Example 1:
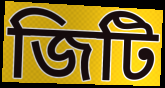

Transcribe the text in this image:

জিটি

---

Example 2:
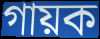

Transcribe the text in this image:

গায়ক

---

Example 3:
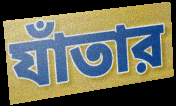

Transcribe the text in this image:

যাঁতার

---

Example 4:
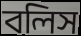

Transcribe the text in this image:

বলিস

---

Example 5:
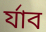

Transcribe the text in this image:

র্যাব